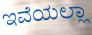
ಇವೆಯಲ್ಲಾ